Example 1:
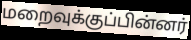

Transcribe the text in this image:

மறைவுக்குப்பின்னர்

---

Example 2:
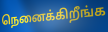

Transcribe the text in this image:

நெனைக்கிறீங்க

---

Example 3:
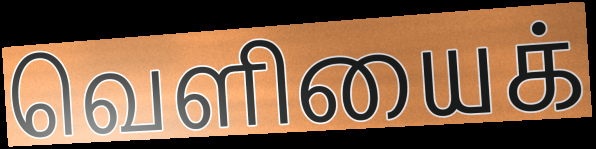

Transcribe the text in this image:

வெளியைக்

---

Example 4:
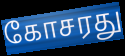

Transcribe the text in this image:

கோசரது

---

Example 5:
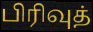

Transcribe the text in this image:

பிரிவுத்